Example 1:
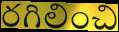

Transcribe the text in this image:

రగిలించి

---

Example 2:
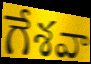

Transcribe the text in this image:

గేశవా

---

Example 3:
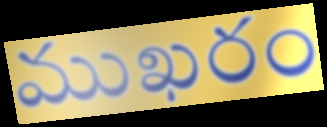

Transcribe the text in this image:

ముఖరం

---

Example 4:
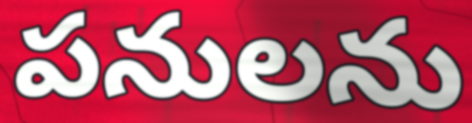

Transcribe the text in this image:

పనులను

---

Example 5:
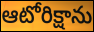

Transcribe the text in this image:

ఆటోరిక్షాను